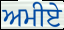
ਅਮੀਏ